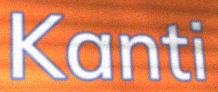
Kanti